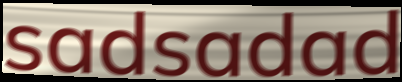
sadsadad